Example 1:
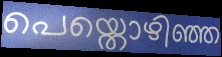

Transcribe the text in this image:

പെയ്തൊഴിഞ്ഞ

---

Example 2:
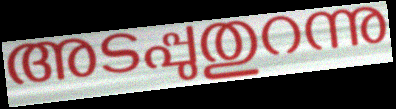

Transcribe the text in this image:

അടപ്പുതുറന്നു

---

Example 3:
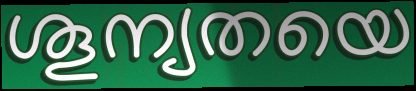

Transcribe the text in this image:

ശൂന്യതയെ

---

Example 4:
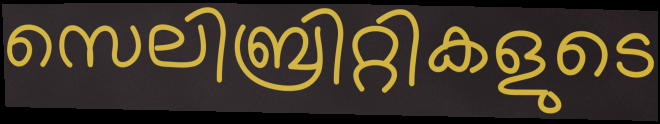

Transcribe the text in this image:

സെലിബ്രിറ്റികളുടെ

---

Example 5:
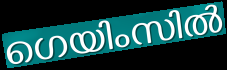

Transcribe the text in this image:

ഗെയിംസിൽ